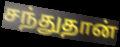
சந்துதான்